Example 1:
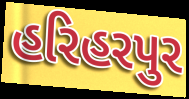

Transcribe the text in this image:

હરિહરપુર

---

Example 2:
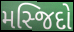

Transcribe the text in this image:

મસ્જિદો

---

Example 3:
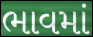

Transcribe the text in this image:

ભાવમાં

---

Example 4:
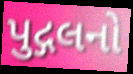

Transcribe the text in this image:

પુદ્ગલનો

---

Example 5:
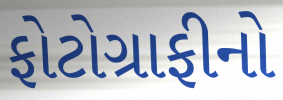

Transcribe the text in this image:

ફોટોગ્રાફીનો